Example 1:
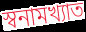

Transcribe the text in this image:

স্বনামখ্যাত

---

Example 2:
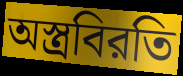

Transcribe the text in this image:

অস্ত্রবিরতি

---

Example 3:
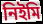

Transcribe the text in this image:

নিইমি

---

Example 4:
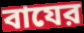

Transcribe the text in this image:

বাযের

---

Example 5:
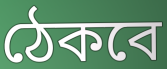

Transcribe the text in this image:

ঠেকবে